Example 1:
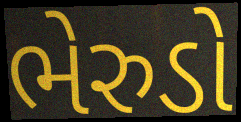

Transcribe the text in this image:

ભેરુડો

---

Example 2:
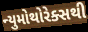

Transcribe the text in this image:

ન્યુમોથોરેક્સથી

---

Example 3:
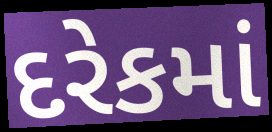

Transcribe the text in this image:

દરેકમાં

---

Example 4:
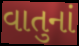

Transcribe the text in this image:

વાતુનાં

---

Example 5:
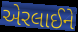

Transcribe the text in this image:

એરલાઈને